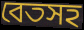
বেতসহ